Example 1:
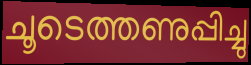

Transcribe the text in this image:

ചൂടെത്തണുപ്പിച്ചു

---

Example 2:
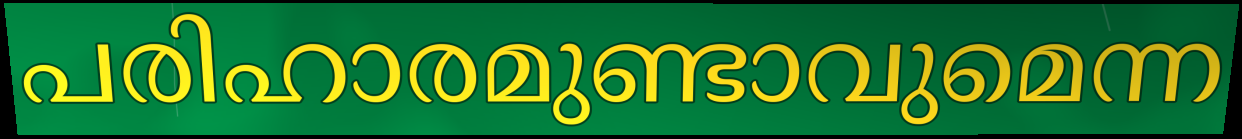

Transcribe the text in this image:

പരിഹാരമുണ്ടാവുമെന്ന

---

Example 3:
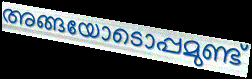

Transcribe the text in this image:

അങ്ങയോടൊപ്പമുണ്ട്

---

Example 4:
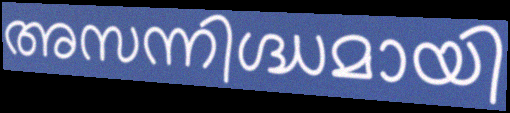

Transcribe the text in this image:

അസന്നിഗ്ദ്ധമായി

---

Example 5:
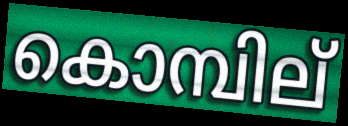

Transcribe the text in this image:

കൊമ്പില്